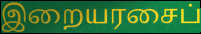
இறையரசைப்